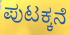
ಪುಟಕ್ಕನೆ